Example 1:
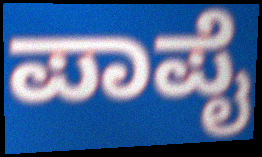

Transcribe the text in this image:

ಪಾಪೈ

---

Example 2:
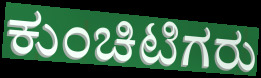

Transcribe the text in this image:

ಕುಂಚಿಟಿಗರು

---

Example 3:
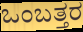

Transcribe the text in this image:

ಒಂಬತ್ತರ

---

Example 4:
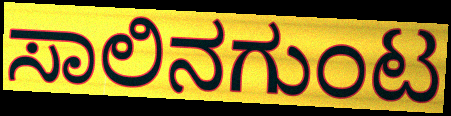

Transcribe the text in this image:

ಸಾಲಿನಗುಂಟ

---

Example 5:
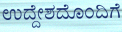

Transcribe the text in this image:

ಉದ್ದೇಶದೊಂದಿಗೆ